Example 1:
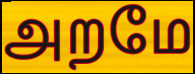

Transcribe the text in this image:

அறமே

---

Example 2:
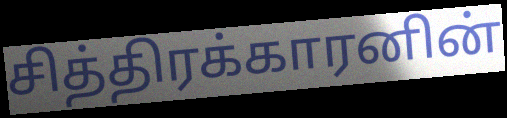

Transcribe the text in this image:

சித்திரக்காரனின்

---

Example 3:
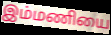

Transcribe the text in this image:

இம்மணியை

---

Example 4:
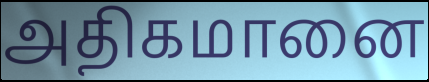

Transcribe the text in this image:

அதிகமானை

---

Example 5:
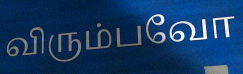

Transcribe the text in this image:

விரும்பவோ